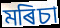
মৰিচা